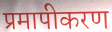
प्रमापीकरण